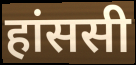
हांससी